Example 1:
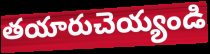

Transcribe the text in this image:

తయారుచెయ్యండి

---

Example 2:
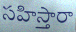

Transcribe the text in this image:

సహిస్తారా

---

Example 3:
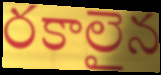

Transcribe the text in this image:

రకాలైన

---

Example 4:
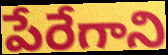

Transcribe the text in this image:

పేరేగాని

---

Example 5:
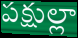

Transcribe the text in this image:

పక్షుల్లా